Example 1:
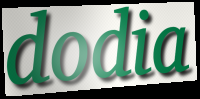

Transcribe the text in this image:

dodia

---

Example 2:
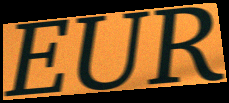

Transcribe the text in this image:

EUR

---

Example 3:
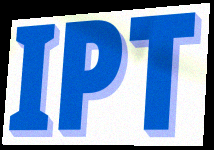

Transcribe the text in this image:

IPT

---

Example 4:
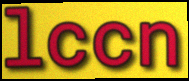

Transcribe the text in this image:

lccn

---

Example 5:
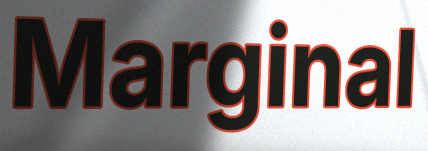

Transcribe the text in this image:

Marginal